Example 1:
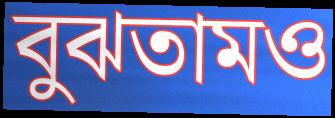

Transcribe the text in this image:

বুঝতামও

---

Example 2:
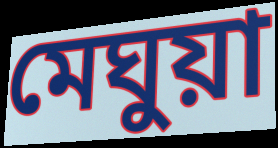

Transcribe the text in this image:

মেঘুয়া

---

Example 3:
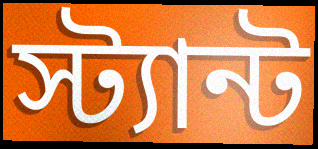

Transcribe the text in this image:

স্ট্যান্ট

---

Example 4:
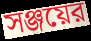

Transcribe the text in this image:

সঞ্জয়ের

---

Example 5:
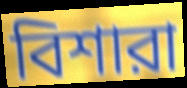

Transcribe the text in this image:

বিশারা